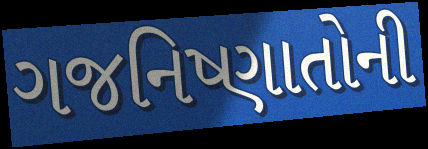
ગજનિષ્ણાતોની